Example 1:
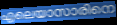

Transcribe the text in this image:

എലെയാസാരിനെ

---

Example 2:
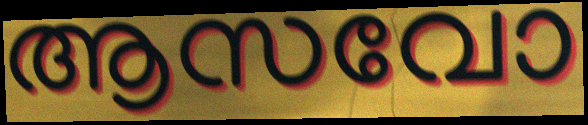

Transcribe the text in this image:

ആസവോ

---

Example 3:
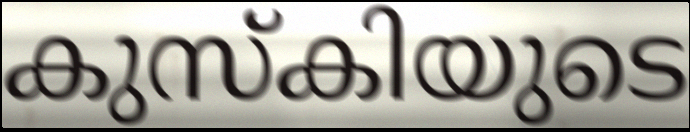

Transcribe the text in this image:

കുസ്കിയുടെ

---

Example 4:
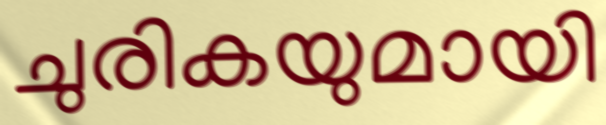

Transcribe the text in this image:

ചുരികയുമായി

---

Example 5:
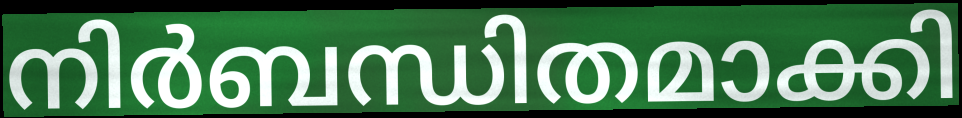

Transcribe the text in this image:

നിർബന്ധിതമാക്കി